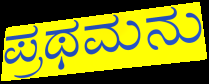
ಪ್ರಥಮನು